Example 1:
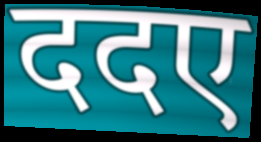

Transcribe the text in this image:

ददए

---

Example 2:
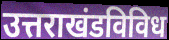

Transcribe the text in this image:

उत्तराखंडविविध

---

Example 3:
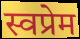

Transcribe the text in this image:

स्वप्रेम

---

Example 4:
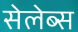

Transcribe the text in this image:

सेलेब्स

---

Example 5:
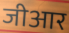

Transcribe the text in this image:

जीआर